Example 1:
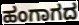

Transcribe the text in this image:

ಹಂಗಾಗದ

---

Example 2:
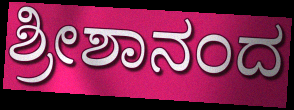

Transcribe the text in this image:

ಶ್ರೀಶಾನಂದ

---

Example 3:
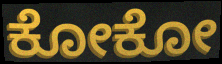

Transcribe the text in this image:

ಕೋಕೋ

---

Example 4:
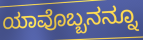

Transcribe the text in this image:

ಯಾವೊಬ್ಬನನ್ನೂ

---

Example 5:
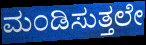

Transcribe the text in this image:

ಮಂಡಿಸುತ್ತಲೇ